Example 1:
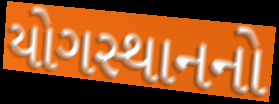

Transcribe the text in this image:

યોગસ્થાનનો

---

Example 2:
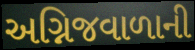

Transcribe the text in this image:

અગ્નિજવાળાની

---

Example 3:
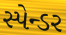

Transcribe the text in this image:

સ્પેન્ડર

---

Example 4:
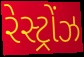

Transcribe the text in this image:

રેસ્ટ્રોંઝ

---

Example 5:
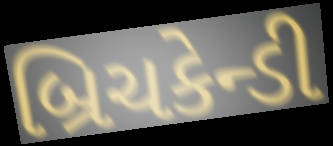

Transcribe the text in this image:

બ્રિચકેન્ડી